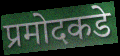
प्रमोदकडे